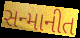
સન્માનીત